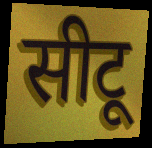
सीटू